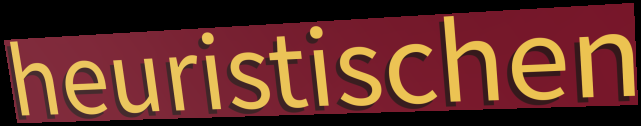
heuristischen